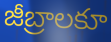
జీబ్రాలకూ